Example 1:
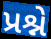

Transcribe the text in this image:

પ્રશ્ને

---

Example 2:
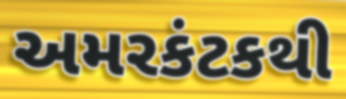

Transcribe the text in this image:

અમરકંટકથી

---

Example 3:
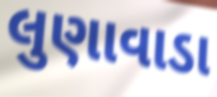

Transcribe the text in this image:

લુણાવાડા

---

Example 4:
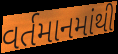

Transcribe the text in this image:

વર્તમાનમાંથી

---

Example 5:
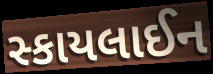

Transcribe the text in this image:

સ્કાયલાઈન